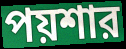
পয়শার